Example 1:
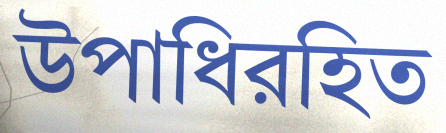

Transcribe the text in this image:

উপাধিরহিত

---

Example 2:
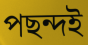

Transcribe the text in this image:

পছন্দই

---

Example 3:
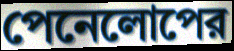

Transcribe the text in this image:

পেনেলোপের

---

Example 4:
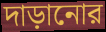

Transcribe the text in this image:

দাড়ানোর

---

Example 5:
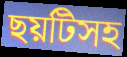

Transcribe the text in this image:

ছয়টিসহ